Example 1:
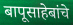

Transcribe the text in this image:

बापूसाहेबांचे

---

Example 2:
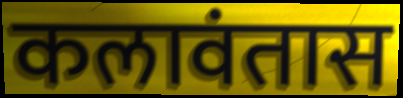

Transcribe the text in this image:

कलावंतास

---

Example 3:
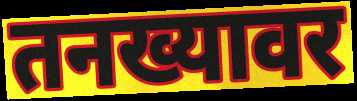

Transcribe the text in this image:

तनख्यावर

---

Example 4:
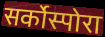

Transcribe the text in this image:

सर्कोस्पोरा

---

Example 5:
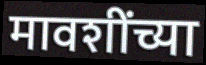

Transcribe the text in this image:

मावशींच्या